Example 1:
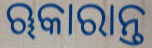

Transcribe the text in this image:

ୠକାରାନ୍ତ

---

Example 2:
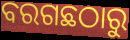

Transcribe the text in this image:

ବରଗଛଠାରୁ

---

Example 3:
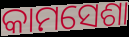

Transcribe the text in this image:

କାମସେଶା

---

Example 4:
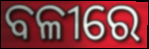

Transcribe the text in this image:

ବଳୀରେ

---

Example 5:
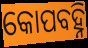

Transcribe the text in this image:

କୋପବହ୍ନି